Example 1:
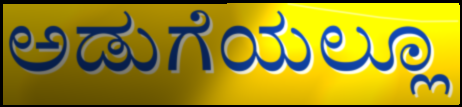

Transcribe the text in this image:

ಅಡುಗೆಯಲ್ಲೂ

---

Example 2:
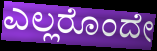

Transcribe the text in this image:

ಎಲ್ಲರೊಂದೇ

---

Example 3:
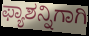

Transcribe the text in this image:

ಫ್ಯಾಶನ್ನಿಗಾಗಿ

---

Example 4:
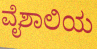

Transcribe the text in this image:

ವೈಶಾಲಿಯ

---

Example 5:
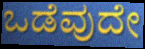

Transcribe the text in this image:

ಒಡೆವುದೇ